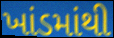
ખાંડમાંથી